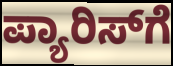
ಪ್ಯಾರಿಸ್‍ಗೆ